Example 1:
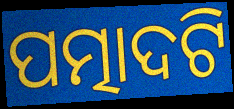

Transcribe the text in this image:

ପତ୍ମାଦଟି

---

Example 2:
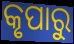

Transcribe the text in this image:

କୃପାରୁ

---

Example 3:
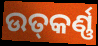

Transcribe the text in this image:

ଉତ୍‍କର୍ଣ୍ଣ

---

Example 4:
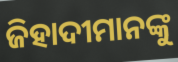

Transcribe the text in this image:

ଜିହାଦୀମାନଙ୍କୁ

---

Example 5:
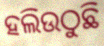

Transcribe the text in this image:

ହଲିଉଠୁଛି